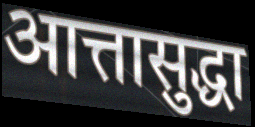
आत्तासुद्धा